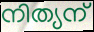
നിത്യന്